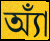
অ্যাঁ